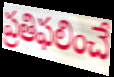
ప్రతిఫలించే